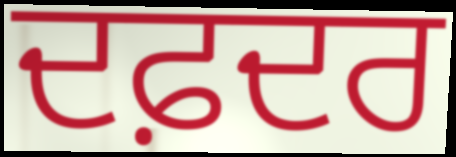
ਦਫ਼ਦਰ